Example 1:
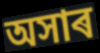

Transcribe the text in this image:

অসাৰ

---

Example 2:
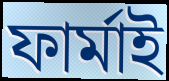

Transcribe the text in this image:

ফাৰ্মাই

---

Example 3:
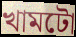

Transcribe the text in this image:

খামটো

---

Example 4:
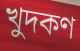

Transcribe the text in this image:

খুদকণ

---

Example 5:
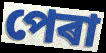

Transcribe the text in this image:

পেৰা